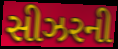
સીઝરની